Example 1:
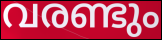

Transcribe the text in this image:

വരണ്ടും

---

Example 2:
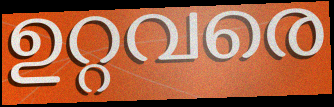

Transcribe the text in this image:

ഉറ്റവരെ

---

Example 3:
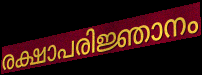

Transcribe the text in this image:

രക്ഷാപരിജ്ഞാനം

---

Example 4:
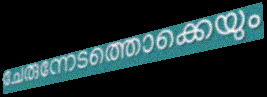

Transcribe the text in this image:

ചേരുന്നേടത്തൊക്കെയും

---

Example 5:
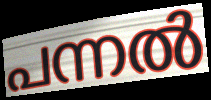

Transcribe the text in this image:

പന്നൽ